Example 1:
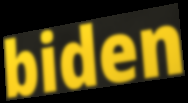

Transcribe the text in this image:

biden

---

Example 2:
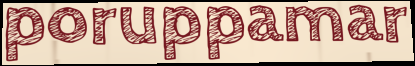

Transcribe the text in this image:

poruppamar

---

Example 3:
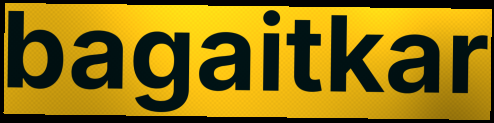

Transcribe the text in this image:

bagaitkar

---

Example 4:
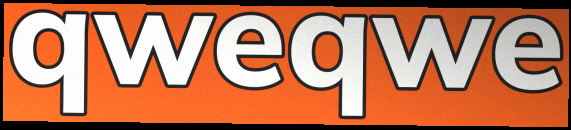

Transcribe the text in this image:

qweqwe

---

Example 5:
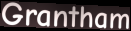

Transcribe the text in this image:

Grantham